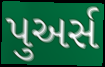
પુઅર્સ